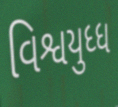
વિશ્વયુધ્ધ